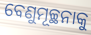
ବେଣୁମୂଚ୍ଛନାକୁ